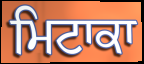
ਮਿਟਾਕਾ